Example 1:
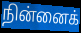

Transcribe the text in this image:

நின்னைக்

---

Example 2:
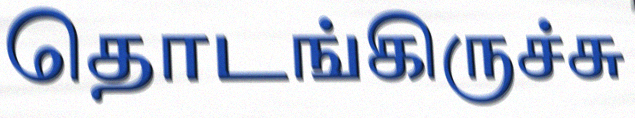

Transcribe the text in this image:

தொடங்கிருச்சு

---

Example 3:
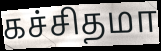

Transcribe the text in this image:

கச்சிதமா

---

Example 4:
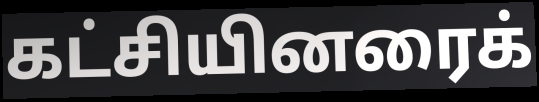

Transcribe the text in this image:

கட்சியினரைக்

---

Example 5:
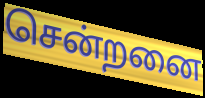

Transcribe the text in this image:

சென்றனை